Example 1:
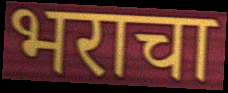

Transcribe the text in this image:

भराचा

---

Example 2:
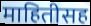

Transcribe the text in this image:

माहितीसह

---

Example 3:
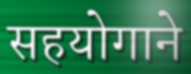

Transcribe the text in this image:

सहयोगाने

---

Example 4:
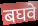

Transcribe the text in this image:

बघवे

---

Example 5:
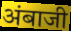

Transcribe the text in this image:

अंबाजी